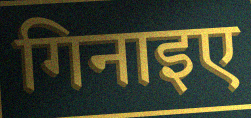
गिनाइए